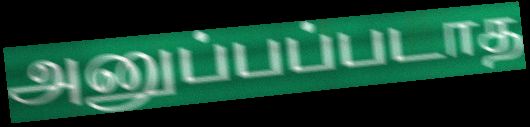
அனுப்பப்படாத